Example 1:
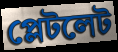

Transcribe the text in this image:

প্লেটলেট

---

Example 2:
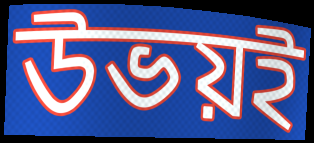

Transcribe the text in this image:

উভয়ই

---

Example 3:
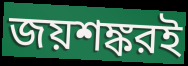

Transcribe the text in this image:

জয়শঙ্করই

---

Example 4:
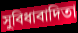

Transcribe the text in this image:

সুবিধাবাদিতা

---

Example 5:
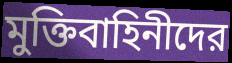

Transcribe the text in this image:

মুক্তিবাহিনীদের